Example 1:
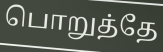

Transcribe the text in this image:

பொறுத்தே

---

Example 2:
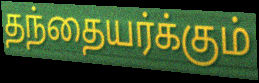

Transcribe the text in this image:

தந்தையர்க்கும்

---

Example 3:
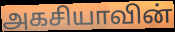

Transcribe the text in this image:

அகசியாவின்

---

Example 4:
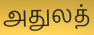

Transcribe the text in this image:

அதுலத்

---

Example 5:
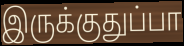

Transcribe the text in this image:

இருக்குதுப்பா